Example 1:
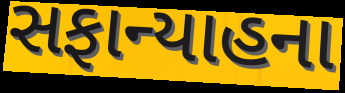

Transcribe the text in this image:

સફાન્યાહના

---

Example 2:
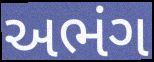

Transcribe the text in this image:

અભંગ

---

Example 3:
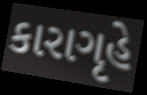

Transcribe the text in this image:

કારાગૃહે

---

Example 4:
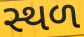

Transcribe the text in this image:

સ્થળ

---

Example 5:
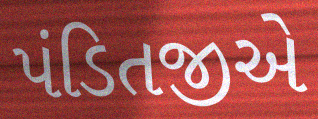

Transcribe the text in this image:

પંડિતજીએ